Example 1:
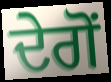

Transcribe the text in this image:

ਦੇਗੋਂ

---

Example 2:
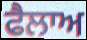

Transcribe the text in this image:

ਫੈਲਾਅ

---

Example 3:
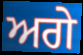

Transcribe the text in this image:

ਅਗੇ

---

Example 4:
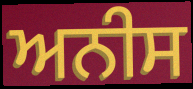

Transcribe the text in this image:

ਅਨੀਸ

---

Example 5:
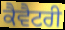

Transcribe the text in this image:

ਕੈਵੈਟਰੀ